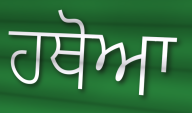
ਹਥੋਆ